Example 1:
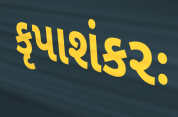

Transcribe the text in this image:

કૃપાશંકરઃ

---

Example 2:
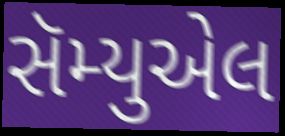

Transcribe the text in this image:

સૅમ્યુએલ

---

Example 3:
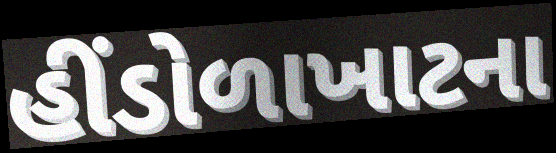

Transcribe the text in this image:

હીંડોળાખાટના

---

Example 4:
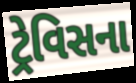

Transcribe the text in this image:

ટ્રેવિસના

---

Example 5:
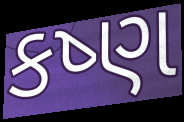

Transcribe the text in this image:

કષ્ણ